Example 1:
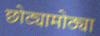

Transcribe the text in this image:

छोट्यामोठ्या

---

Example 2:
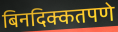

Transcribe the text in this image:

बिनदिक्कतपणे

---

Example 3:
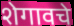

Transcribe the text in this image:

शेगावचे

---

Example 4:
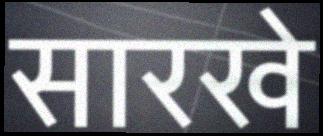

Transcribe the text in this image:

सारखे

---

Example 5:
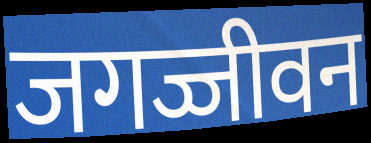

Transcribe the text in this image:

जगज्जीवन